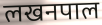
लखनपाल